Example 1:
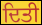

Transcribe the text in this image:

ਦਿਤੀ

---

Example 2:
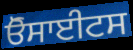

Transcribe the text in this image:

ਓੋਸਾਈਟਸ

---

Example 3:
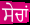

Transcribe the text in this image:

ਸੇਚਾਂ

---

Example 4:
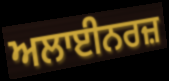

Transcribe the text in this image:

ਅਲਾਈਨਰਜ਼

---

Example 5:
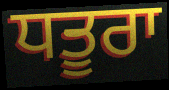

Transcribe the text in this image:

ਧਤੂਰਾ